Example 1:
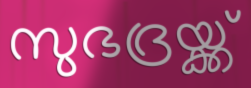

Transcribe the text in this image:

സുഭദ്രയ്ക്ക്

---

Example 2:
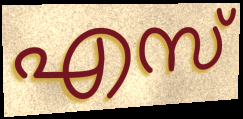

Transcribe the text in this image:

എസ്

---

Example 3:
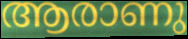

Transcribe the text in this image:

ആരാണു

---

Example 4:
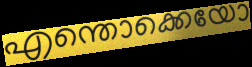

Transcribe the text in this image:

എന്തൊക്കെയോ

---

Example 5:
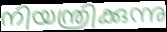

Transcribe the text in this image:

നിയന്ത്രിക്കുന്നു